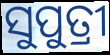
ସୁପୁତ୍ରୀ